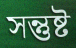
সন্তুষ্ট